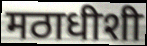
मठाधीशी